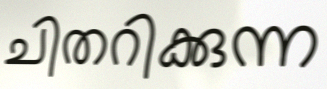
ചിതറിക്കുന്ന